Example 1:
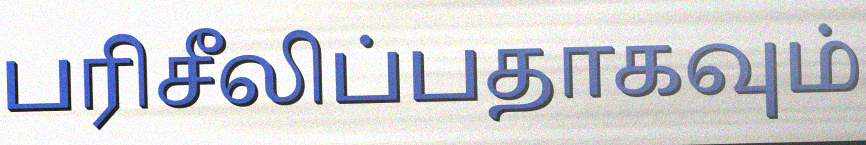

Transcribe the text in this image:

பரிசீலிப்பதாகவும்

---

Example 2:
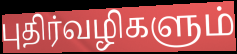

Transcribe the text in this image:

புதிர்வழிகளும்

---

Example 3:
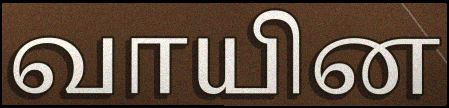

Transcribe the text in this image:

வாயின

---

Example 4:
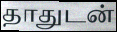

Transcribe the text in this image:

தாதுடன்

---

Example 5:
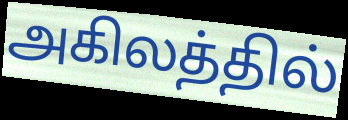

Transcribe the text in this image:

அகிலத்தில்